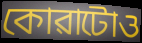
কোৱাটোও